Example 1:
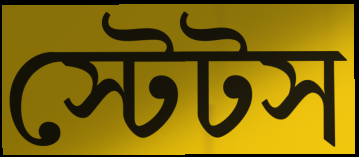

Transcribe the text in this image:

স্টেটস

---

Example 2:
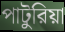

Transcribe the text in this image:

পাটুরিয়া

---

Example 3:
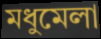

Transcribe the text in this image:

মধুমেলা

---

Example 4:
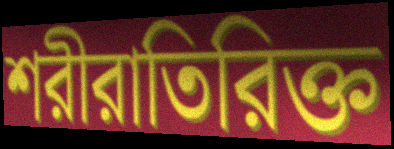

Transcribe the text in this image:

শরীরাতিরিক্ত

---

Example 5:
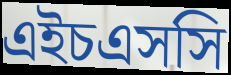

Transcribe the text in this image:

এইচএসসি